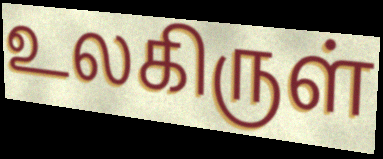
உலகிருள்